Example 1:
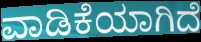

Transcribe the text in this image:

ವಾಡಿಕೆಯಾಗಿದೆ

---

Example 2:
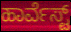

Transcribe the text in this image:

ಹಾರ್ವೆಸ್ಟ್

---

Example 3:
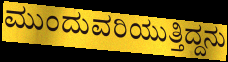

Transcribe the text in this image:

ಮುಂದುವರಿಯುತ್ತಿದ್ದನು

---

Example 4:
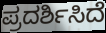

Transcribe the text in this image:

ಪ್ರದರ್ಶಿಸಿದೆ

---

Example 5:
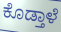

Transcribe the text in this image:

ಕೊಡ್ತಾಳೆ